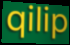
qilip